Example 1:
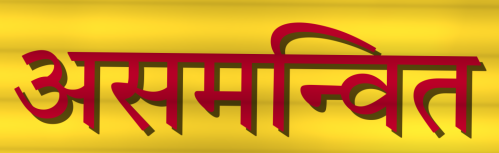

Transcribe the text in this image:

असमन्वित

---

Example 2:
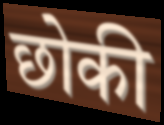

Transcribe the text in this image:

छोकी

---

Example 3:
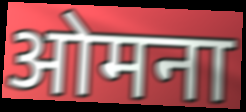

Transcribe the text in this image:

ओमना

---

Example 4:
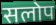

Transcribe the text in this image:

सलोप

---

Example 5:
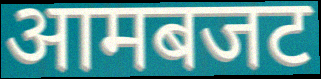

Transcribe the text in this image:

आमबजट